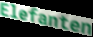
Elefanten